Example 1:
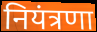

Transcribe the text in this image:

नियंत्रणा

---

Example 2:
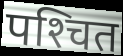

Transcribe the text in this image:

पश्चित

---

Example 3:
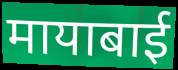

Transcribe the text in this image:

मायाबाई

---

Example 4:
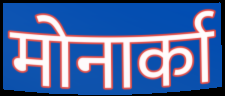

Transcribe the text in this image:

मोनार्का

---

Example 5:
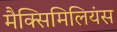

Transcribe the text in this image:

मैक्सिमिलियंस